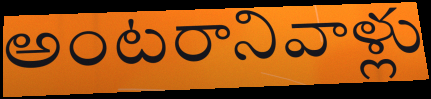
అంటరానివాళ్లు